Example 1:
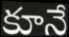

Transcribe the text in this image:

కూనే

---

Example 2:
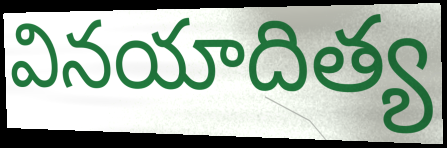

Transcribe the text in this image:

వినయాదిత్య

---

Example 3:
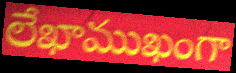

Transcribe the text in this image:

లేఖాముఖంగా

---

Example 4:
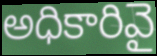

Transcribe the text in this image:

అధికారివై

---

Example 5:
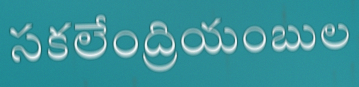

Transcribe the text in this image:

సకలేంద్రియంబుల